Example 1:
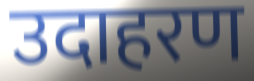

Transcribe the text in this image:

उदाहरण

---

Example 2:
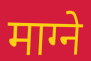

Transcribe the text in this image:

माग्ने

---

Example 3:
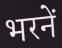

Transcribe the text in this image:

भरनें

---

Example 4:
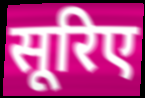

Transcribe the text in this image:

सूरिए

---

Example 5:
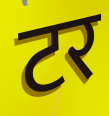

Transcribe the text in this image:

टर